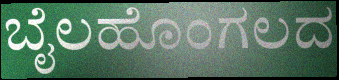
ಬೈಲಹೊಂಗಲದ